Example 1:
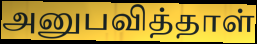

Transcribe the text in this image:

அனுபவித்தாள்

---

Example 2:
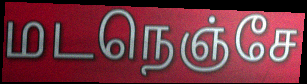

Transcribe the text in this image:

மடநெஞ்சே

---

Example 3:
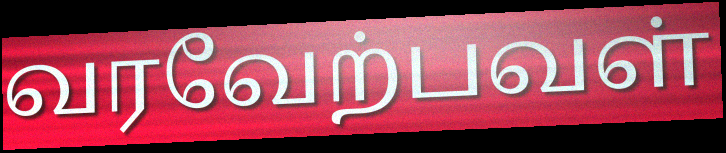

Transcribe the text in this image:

வரவேற்பவள்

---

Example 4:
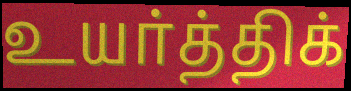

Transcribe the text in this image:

உயர்த்திக்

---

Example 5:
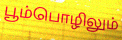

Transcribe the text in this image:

பூம்பொழிலும்